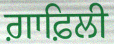
ਗ਼ਾਫ਼ਿਲੀ